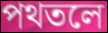
পথতলে